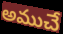
అముచే